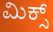
ಮಿಕ್ಸ್